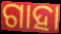
ଗାହା